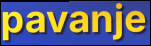
pavanje